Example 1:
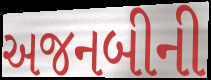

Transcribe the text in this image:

અજનબીની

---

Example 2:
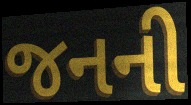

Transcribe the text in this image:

જનની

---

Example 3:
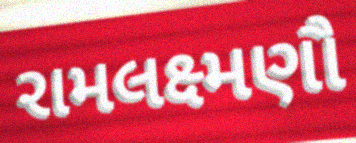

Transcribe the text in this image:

રામલક્ષ્મણૌ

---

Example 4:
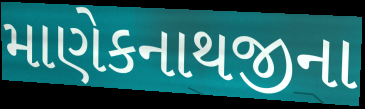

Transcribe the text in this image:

માણેકનાથજીના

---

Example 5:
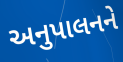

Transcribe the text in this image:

અનુપાલનને